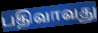
பதிவாவது